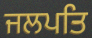
ਜਲਪਤਿ